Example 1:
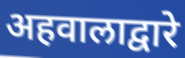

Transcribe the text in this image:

अहवालाद्वारे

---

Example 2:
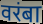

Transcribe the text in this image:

वरंबा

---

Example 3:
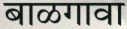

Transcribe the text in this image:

बाळगावा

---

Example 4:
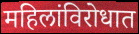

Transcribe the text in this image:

महिलांविरोधात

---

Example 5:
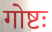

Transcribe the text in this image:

गोष्टः